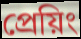
প্রেয়িং